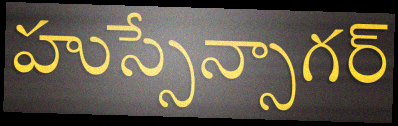
హుస్సేన్సాగర్